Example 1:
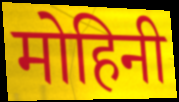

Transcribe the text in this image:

मोहिनी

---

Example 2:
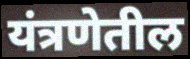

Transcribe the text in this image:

यंत्रणेतील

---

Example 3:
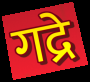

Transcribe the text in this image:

गद्रे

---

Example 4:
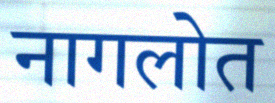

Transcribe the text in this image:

नागलोत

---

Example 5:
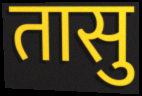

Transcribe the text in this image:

तासु